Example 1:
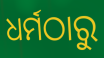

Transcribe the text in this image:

ଧର୍ମଠାରୁ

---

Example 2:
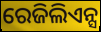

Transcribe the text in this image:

ରେଜିଲିଏନ୍ସ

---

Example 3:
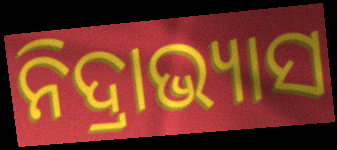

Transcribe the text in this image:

ନିଦ୍ରାଭ୍ୟାସ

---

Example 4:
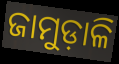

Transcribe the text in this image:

ଜାମୁଡ଼ାଳି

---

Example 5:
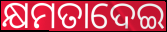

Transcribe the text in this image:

କ୍ଷମତାଦେଇ